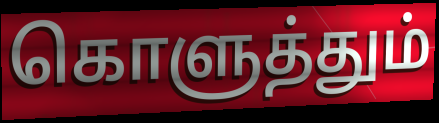
கொளுத்தும்